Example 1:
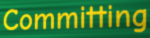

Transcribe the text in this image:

Committing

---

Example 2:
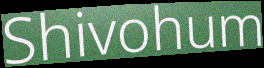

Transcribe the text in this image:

Shivohum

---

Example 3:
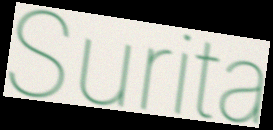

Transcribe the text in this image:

Surita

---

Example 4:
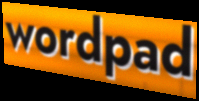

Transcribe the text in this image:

wordpad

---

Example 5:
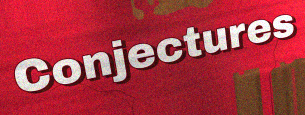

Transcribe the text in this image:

Conjectures